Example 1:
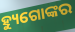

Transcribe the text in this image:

ହ୍ୟୁଗୋଙ୍କର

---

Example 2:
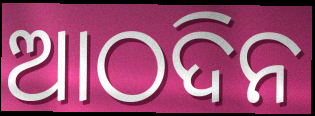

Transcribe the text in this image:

ଆଠଦିନ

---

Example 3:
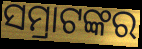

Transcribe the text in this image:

ସମ୍ରାଟଙ୍କର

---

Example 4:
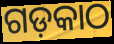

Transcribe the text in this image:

ଗଡ଼କାଠ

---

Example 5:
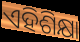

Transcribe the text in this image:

ଏହିଶିକ୍ଷା